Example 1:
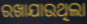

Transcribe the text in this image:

ରଖାଯାଉଥିଲା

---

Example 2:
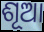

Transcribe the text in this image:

ଶୂଆ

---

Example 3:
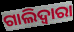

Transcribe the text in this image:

ଗାଲିଦ୍ଵାରା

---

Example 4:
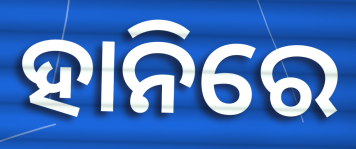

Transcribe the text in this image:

ହାନିରେ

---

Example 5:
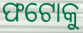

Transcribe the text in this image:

ଫଟୋକୁ